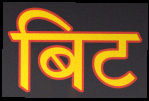
बिट